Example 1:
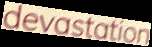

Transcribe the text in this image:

devastation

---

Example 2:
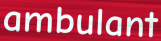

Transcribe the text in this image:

ambulant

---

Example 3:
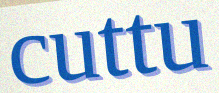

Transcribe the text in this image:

cuttu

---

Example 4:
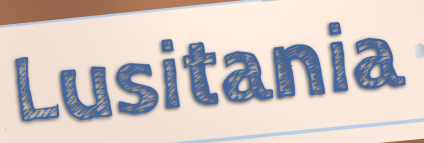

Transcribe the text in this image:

Lusitania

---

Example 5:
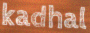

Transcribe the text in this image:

kadhal